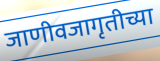
जाणीवजागृतीच्या